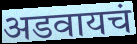
अडवायचं